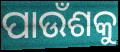
ପାଉଁଶକୁ